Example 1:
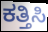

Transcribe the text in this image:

ಕತ್ತಿಸಿ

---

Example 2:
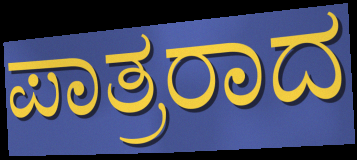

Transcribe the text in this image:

ಪಾತ್ರರಾದ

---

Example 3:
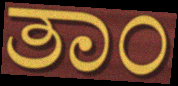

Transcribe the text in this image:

ತಾಂ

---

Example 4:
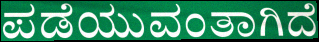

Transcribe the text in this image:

ಪಡೆಯುವಂತಾಗಿದೆ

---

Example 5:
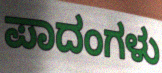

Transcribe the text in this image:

ಪಾದಂಗಳು